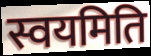
स्वयमिति